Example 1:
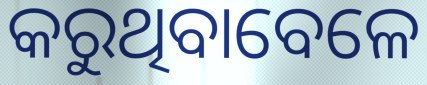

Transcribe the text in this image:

କରୁଥିବାବେଳେ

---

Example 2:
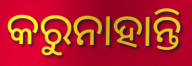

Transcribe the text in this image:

କରୁନାହାନ୍ତି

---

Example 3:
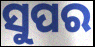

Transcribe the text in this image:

ସୁପର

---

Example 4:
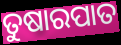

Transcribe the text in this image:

ତୁଷାରପାତ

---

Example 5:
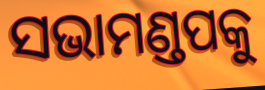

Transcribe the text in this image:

ସଭାମଣ୍ଡପକୁ